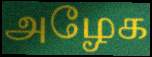
அழேக